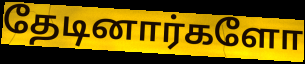
தேடினார்களோ